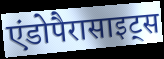
एंडोपैरासाइट्स